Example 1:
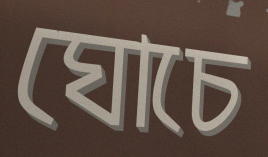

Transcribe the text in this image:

ঘোচে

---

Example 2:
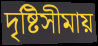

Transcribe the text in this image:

দৃষ্টিসীমায়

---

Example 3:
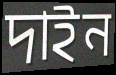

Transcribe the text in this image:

দাইন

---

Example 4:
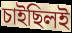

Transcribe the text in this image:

চাইছিলই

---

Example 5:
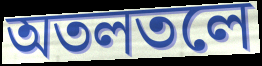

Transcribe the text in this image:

অতলতলে